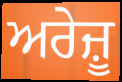
ਅਰੇਜ਼ੂ